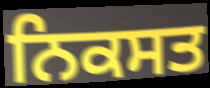
ਨਿਕਸਤ